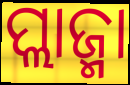
ପ୍ଲାଜ୍ମା